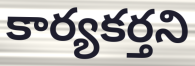
కార్యకర్తని